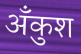
अँकुश